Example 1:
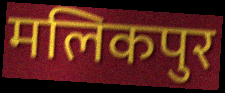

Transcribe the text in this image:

मलिकपुर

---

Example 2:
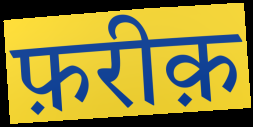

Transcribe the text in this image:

फ़रीक़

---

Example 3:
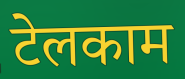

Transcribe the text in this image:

टेलकाम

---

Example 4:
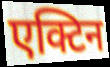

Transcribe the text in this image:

एक्टिन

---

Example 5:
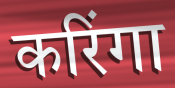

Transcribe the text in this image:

करिंगा